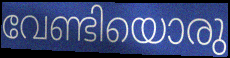
വേണ്ടിയൊരു